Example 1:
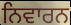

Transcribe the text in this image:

ਨਿਵਾਰਨ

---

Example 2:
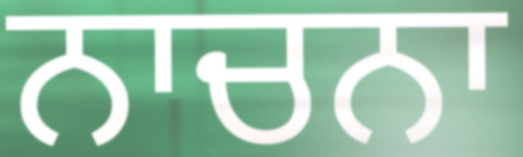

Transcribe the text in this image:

ਨਾਚਨਾ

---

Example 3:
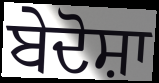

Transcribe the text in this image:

ਬੇਦੋਸ਼ਾ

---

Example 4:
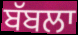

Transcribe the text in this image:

ਬੱਬਲਾ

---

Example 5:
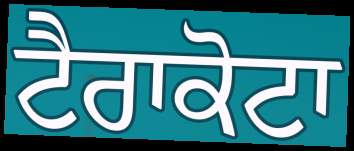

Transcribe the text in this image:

ਟੈਰਾਕੋਟਾ